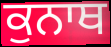
ਕੁਨਾਥ